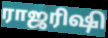
ராஜரிஷி